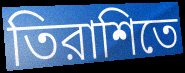
তিরাশিতে